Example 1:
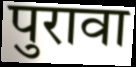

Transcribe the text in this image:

पुरावा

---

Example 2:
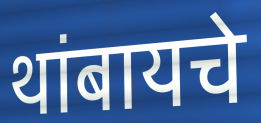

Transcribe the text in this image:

थांबायचे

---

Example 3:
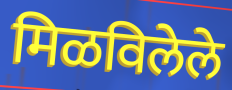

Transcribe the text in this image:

मिळविलेले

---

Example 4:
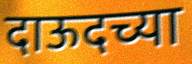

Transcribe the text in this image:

दाऊदच्या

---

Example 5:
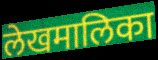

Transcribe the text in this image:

लेखमालिका